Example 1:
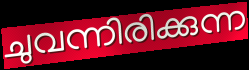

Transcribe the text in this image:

ചുവന്നിരിക്കുന്ന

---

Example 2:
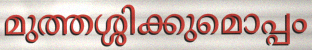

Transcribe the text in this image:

മുത്തശ്ശിക്കുമൊപ്പം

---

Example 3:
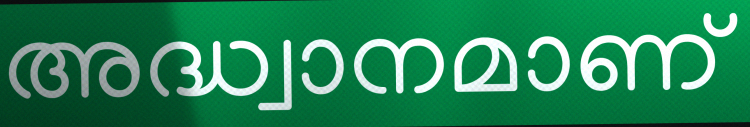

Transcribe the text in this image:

അദ്ധ്വാനമാണ്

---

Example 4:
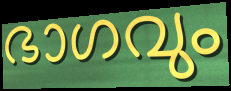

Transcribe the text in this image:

ഭാഗവും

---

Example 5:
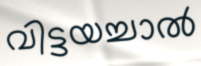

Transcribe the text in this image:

വിട്ടയച്ചാൽ